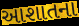
આશાતના